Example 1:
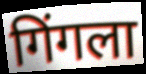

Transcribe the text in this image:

गिंगला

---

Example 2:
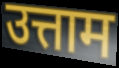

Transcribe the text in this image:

उत्ताम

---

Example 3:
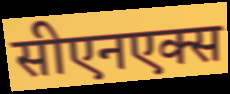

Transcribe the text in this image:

सीएनएक्स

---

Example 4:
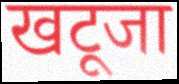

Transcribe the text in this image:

खटूजा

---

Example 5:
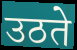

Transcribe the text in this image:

उठते